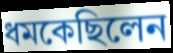
ধমকেছিলেন